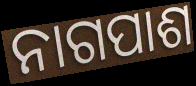
ନାଗପାଶ